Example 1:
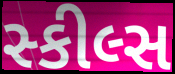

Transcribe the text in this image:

સ્કીલ્સ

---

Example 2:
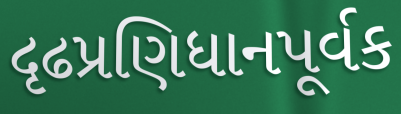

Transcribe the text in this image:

દૃઢપ્રણિધાનપૂર્વક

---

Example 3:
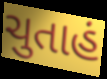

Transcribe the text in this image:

ચુતાહં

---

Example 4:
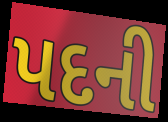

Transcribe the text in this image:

પદની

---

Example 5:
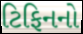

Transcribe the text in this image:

ટિફિનનો